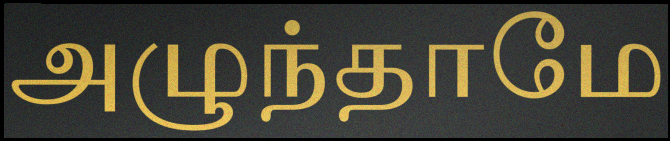
அழுந்தாமே